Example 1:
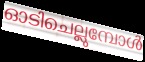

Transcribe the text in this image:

ഓടിചെല്ലുമ്പോൾ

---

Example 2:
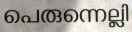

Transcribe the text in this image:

പെരുന്നെല്ലി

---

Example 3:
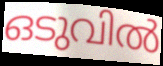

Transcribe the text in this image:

ഒടുവിൽ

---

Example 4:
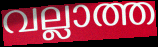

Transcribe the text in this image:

വല്ലാത്ത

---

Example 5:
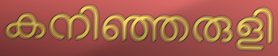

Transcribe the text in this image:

കനിഞ്ഞരുളി